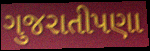
ગુજરાતીપણા